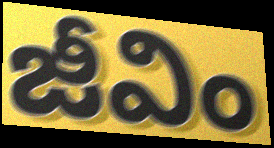
జీవిం